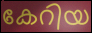
കേറിയ